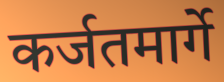
कर्जतमार्गे